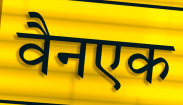
वैनएक